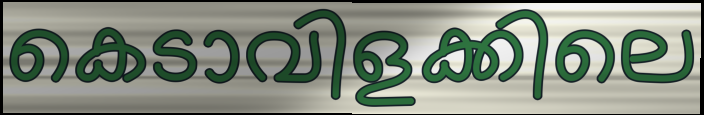
കെടാവിളക്കിലെ